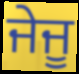
ਜੇਜੂ